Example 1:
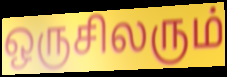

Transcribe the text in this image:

ஒருசிலரும்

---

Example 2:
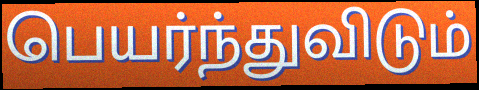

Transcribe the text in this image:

பெயர்ந்துவிடும்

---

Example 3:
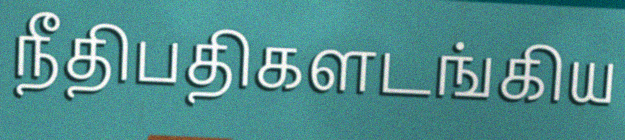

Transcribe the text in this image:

நீதிபதிகளடங்கிய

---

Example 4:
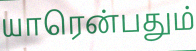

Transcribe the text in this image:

யாரென்பதும்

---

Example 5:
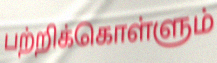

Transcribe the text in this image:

பற்றிக்கொள்ளும்